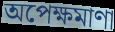
অপেক্ষমাণা